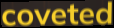
coveted